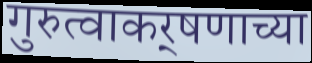
गुरुत्वाकर्षणाच्या